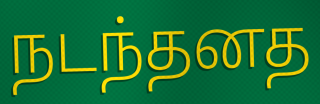
நடந்தனத